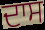
ਦਾਸ